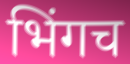
भिंगच